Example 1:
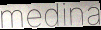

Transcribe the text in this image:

medina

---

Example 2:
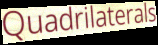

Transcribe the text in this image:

Quadrilaterals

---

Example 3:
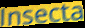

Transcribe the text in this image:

Insecta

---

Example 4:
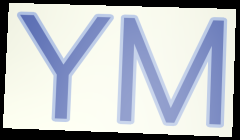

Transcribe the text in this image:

YM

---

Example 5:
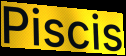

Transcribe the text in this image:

Piscis